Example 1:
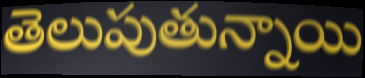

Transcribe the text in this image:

తెలుపుతున్నాయి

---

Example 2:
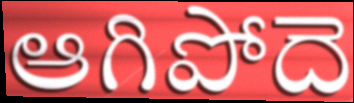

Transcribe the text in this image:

ఆగిపోదె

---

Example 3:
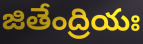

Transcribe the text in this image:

జితేంద్రియః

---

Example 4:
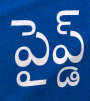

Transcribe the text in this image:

పైప్డ్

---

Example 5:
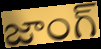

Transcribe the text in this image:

జాంగ్